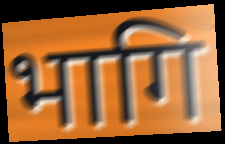
भागि